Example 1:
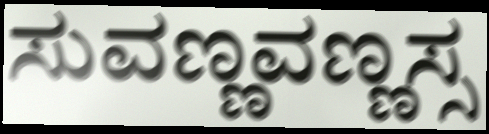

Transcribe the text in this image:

ಸುವಣ್ಣವಣ್ಣಸ್ಸ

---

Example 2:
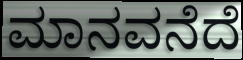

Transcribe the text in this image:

ಮಾನವನೆದೆ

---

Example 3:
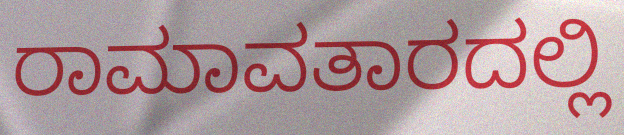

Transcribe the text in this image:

ರಾಮಾವತಾರದಲ್ಲಿ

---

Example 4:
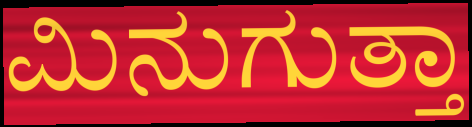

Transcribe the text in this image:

ಮಿನುಗುತ್ತಾ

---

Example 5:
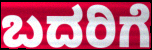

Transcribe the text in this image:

ಬದರಿಗೆ